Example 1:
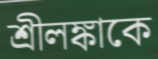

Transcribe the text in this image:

শ্রীলঙ্কাকে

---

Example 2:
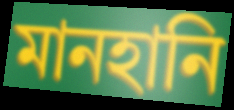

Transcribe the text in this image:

মানহানি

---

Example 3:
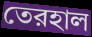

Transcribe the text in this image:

তেরহাল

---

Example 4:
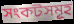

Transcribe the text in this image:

সংকটসমূহ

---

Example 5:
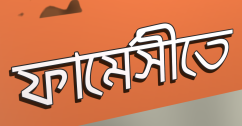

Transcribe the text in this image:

ফার্মেসীতে